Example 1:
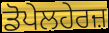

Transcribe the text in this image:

ਡੋਪੇਲਹੇਰਜ਼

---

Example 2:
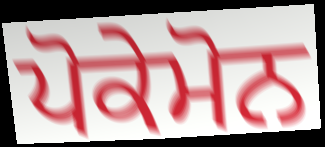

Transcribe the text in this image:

ਪੋਕੇਮੋਨ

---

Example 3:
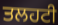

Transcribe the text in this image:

ਤਲਹਟੀ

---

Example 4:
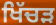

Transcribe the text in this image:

ਖਿੱਚੜ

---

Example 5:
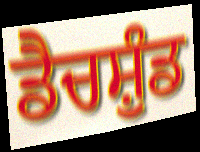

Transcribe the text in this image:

ਡੈਚਸ਼ੁੰਡ